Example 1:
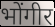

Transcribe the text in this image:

भोंगीर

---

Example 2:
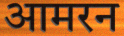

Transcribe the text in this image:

आमरन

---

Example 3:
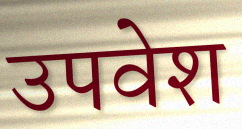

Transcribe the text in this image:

उपवेश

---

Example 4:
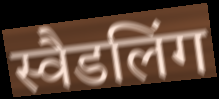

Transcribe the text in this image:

स्वैडलिंग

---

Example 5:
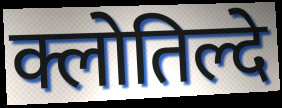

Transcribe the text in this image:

क्लोतिल्दे